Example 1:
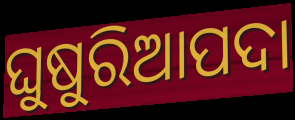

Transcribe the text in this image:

ଘୁଷୁରିଆପଦା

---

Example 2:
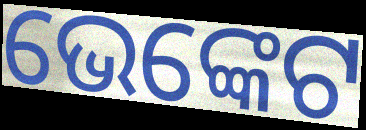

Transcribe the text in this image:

ଭେଙ୍କେଟ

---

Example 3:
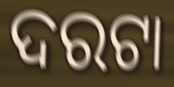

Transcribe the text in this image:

ଦରଟା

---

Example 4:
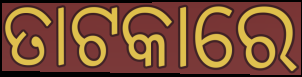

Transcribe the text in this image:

ତାଟକାରେ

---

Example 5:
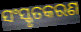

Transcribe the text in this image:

ସଂସ୍କୃତକରଣ